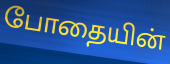
போதையின்